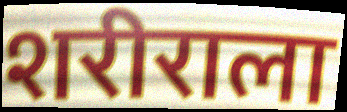
शरीराला